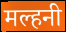
मल्हनी